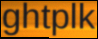
ghtplk